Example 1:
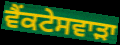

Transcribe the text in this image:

ਵੈਂਕਟੇਸਵਾੜਾ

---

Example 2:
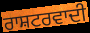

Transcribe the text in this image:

ਰਾਸ਼ਟਰਵਾਦੀ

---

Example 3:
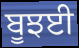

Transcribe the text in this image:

ਬੂਝਈ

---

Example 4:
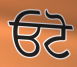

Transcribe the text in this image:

ਓਟੋ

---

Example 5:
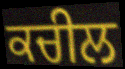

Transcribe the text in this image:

ਕਚੀਲ